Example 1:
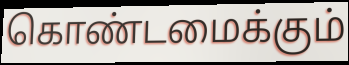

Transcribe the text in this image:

கொண்டமைக்கும்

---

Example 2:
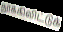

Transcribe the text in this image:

தூக்கிலிட்டுக்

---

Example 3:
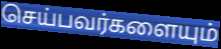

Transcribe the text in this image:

செய்பவர்களையும்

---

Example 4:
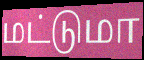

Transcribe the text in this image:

மட்டுமா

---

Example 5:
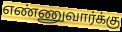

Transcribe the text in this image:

எண்ணுவார்க்கு